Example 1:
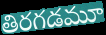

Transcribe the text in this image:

తిరగడమూ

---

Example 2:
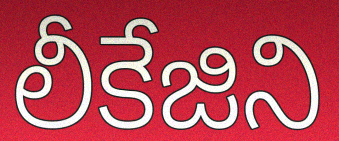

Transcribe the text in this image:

లీకేజిని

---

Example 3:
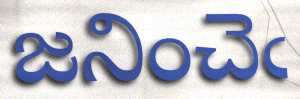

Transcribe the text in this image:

జనించెఁ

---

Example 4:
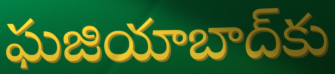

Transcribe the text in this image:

ఘజియాబాద్‌కు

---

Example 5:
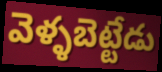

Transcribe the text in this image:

వెళ్ళబెట్టేడు